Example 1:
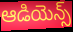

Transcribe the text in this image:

ఆడియెన్స్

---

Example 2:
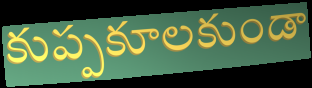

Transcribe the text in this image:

కుప్పకూలకుండా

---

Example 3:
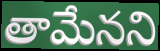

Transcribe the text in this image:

తామేనని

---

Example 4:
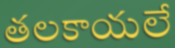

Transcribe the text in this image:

తలకాయలే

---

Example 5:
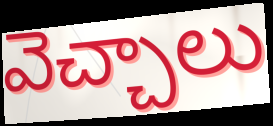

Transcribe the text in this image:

వెచ్చాలు